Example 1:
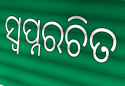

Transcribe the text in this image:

ସ୍ୱପ୍ନରଚିତ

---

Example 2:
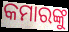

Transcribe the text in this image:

କମାରଙ୍କୁ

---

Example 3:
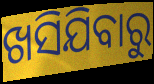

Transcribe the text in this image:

ଖସିଯିବାରୁ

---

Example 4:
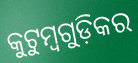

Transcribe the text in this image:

କୁଟୁମ୍ବଗୁଡ଼ିକର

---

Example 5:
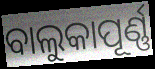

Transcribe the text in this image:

ବାଲୁକାପୂର୍ଣ୍ଣ